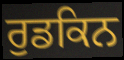
ਰੁਡਕਿਨ